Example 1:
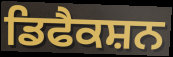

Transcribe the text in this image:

ਡਿਫੈਕਸ਼ਨ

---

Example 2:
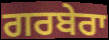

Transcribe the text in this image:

ਗਰਬੇਰਾ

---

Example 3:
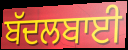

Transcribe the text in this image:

ਬੱਦਲਬਾਈ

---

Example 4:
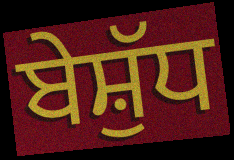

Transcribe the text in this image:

ਬੇਸ਼ੁੱਧ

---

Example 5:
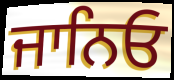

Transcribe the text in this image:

ਜਾਨਿਓ